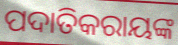
ପଦାତିକରାୟଙ୍କ